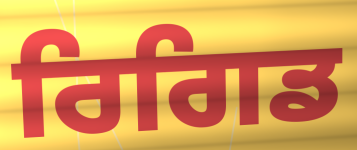
ਰਿਗਿਡ